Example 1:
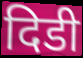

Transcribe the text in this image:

दिडी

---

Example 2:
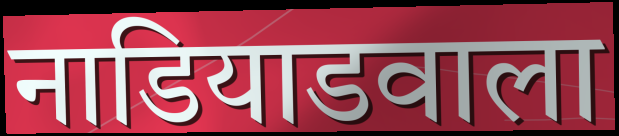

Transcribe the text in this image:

नाडियाडवाला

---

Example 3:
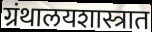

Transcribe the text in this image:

ग्रंथालयशास्त्रात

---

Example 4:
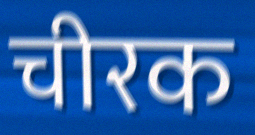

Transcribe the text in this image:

चीरक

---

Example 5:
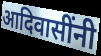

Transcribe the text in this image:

आदिवासींनी